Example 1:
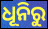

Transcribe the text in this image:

ଧୂନିରୁ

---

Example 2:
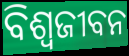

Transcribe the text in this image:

ବିଶ୍ଵଜୀବନ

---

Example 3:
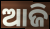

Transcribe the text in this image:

ଆଜି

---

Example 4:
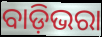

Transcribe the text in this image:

ବାଡ଼ିଭରା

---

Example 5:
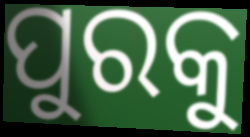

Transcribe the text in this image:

ପୁରକୁ